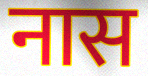
नास